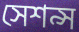
সেশন্স